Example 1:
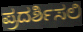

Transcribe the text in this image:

ಪ್ರದರ್ಶಿಸಲಿ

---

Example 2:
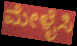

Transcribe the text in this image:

ಮೇಳೈಸಿ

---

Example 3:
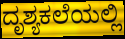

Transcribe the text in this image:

ದೃಶ್ಯಕಲೆಯಲ್ಲಿ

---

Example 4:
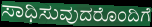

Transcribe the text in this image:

ಸಾಧಿಸುವುದರೊಂದಿಗೆ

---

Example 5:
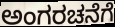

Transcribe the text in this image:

ಅಂಗರಚನೆಗೆ